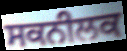
ਸਕਨੀਲਕ